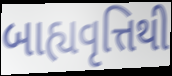
બાહ્યવૃત્તિથી